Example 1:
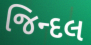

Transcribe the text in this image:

જિન્દલ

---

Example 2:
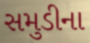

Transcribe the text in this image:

સમુડીના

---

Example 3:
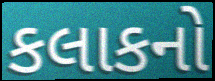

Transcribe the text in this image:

કલાકનો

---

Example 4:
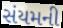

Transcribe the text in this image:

સંયમની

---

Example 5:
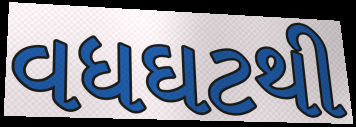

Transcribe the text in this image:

વધઘટથી